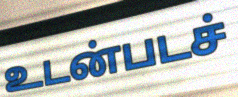
உடன்படச்